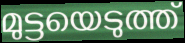
മുട്ടയെടുത്ത്